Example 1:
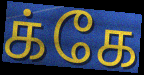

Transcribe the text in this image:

க்கே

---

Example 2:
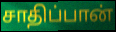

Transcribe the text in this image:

சாதிப்பான்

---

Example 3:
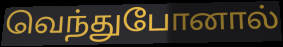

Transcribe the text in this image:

வெந்துபோனால்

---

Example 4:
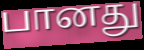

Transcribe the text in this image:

பானது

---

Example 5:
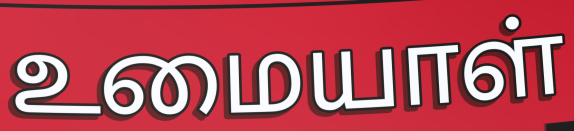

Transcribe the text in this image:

உமையாள்